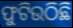
ଫୁଟିଉଠିଛି